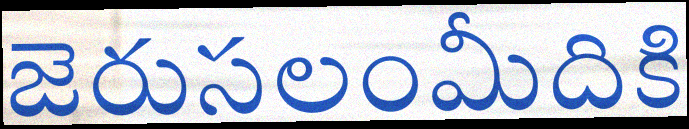
జెరుసలంమీదికి